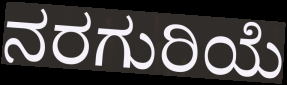
ನರಗುರಿಯೆ